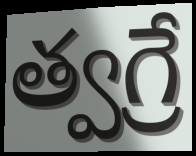
త్వగ్రే